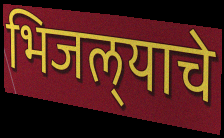
भिजल्याचे